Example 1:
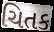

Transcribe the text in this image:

ચિતક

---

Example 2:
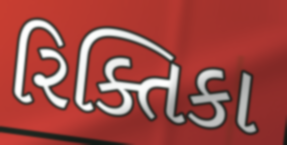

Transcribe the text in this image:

રિક્તિકા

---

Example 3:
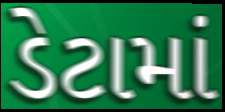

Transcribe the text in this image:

ડેટામાં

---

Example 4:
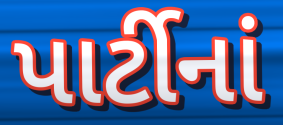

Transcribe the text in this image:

પાર્ટીનાં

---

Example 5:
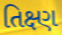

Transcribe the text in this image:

તિક્ષ્ણ